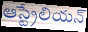
ఆస్ట్రేలియన్